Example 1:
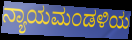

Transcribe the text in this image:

ನ್ಯಾಯಮಂಡಳಿಯ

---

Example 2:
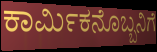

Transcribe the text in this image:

ಕಾರ್ಮಿಕನೊಬ್ಬನಿಗೆ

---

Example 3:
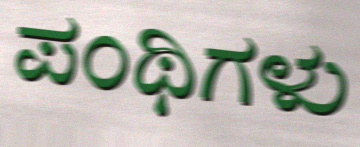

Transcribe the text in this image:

ಪಂಥಿಗಳು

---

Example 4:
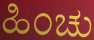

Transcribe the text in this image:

ಹಿಂಚು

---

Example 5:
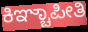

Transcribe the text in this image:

ಕಿಞ್ಚಾಪೀತಿ